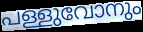
പള്ളുവോനും